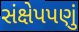
સંક્ષેપપણું